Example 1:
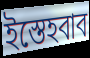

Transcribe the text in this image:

ইস্তেহবাব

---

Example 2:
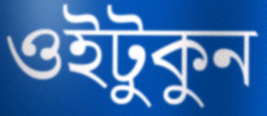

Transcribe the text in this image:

ওইটুকুন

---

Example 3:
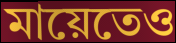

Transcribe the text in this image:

মায়েতেও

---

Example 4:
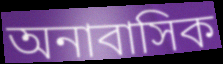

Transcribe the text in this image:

অনাবাসিক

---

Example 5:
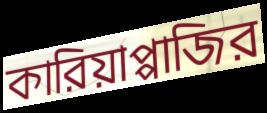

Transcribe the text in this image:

কারিয়াপ্পাজির